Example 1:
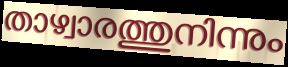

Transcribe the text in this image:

താഴ്വാരത്തുനിന്നും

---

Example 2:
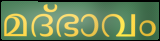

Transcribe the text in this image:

മദ്ഭാവം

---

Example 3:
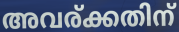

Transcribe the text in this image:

അവര്ക്കതിന്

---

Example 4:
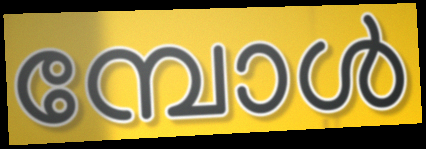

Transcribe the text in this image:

മ്പോൾ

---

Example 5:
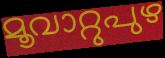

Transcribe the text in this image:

മൂവാറ്റുപുഴ